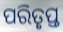
ପରିତୃପ୍ତ